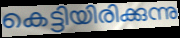
കെട്ടിയിരിക്കുന്നു